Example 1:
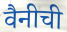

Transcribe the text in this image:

वैनीची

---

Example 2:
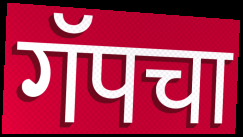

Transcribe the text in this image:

गॅपचा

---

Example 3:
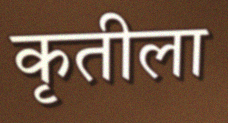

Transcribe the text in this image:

कृतीला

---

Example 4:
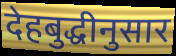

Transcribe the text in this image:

देहबुद्धीनुसार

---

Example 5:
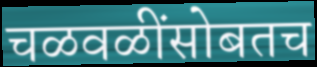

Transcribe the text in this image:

चळवळींसोबतच